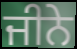
ਜੀਨੇ